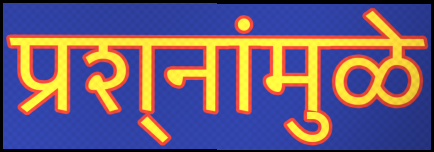
प्रश्नांमुळे